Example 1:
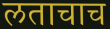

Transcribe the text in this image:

लताचाच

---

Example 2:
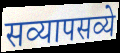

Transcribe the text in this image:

सव्यापसव्ये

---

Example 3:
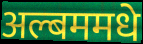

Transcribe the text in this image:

अल्बममधे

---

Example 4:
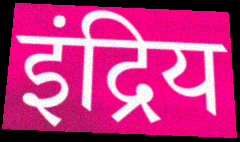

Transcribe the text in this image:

इंद्रिय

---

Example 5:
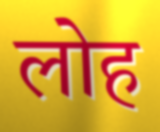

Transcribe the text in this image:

लोह